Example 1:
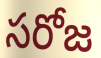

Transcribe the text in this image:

సరోజ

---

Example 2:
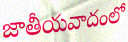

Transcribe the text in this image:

జాతీయవాదంలో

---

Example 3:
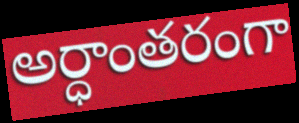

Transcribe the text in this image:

అర్ధాంతరంగా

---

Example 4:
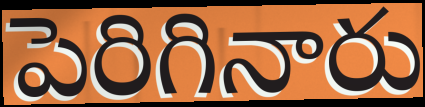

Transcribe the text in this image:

పెరిగినారు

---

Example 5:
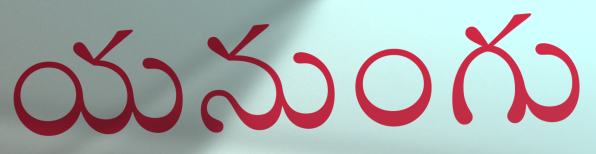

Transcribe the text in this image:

యనుంగు